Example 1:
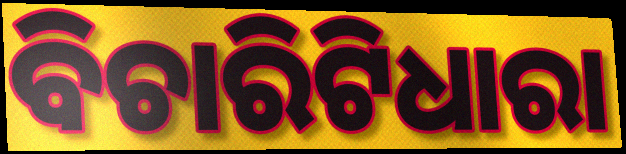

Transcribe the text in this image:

ବିଚାରିଟିଧାରା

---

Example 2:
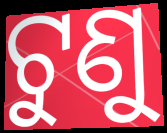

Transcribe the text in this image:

ଟୁଣୁ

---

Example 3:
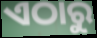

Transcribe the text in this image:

ଏଠାରୁ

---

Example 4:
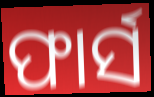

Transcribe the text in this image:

ଫାର୍ସ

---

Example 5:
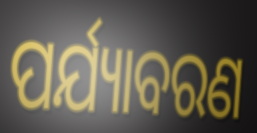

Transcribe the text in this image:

ପର୍ଯ୍ୟାବରଣ